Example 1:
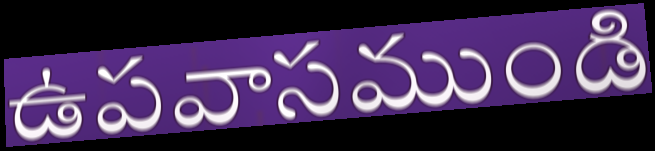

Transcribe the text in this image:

ఉపవాసముండి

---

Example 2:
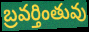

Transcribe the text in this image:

బ్రవర్తింతువు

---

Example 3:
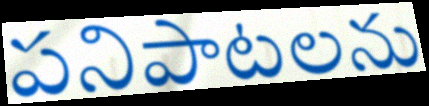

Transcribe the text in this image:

పనిపాటలను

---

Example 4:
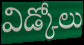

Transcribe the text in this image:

విడ్కోలు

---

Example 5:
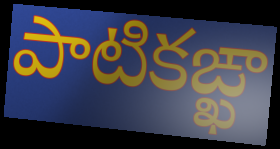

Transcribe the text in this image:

పాటికఙ్ఖా